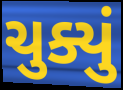
ચુક્યું